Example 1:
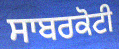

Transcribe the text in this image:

ਸਾਬਰਕੋਟੀ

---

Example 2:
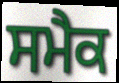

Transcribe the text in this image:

ਸਮੈਕ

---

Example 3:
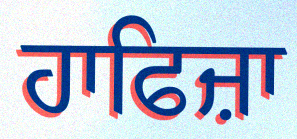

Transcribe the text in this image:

ਹਾਫਿਜ਼ਾ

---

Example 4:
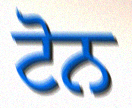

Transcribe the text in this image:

ਟੋਨ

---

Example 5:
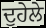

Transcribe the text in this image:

ਦੁਹੇਲੇ